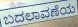
ಬದಲಾವಣೆಯ